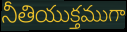
నీతియుక్తముగా